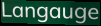
Langauge